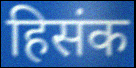
हिसंक